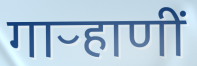
गाऱ्हाणीं